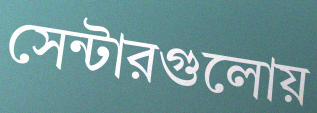
সেন্টারগুলোয়